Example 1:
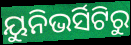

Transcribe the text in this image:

ୟୁନିଭର୍ସିଟିରୁ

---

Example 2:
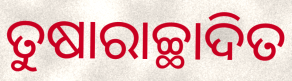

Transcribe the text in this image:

ତୁଷାରାଚ୍ଛାଦିତ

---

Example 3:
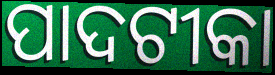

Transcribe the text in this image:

ପାଦଟୀକା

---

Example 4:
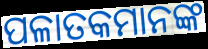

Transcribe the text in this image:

ପଳାତକମାନଙ୍କ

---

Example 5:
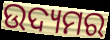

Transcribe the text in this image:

ଉଦ୍ୟମର